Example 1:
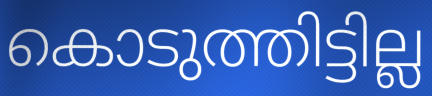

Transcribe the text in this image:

കൊടുത്തിട്ടില്ല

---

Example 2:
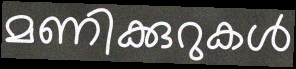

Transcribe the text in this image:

മണിക്കുറുകൾ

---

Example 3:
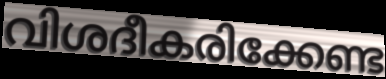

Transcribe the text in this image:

വിശദീകരിക്കേണ്ട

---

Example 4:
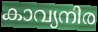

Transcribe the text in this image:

കാവ്യനിര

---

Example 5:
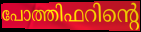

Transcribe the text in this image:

പോത്തിഫറിന്റെ